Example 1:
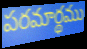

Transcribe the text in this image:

పరమార్థము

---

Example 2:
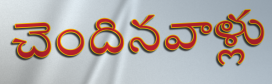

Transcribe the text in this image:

చెందినవాళ్లు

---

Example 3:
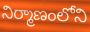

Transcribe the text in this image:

నిర్మాణంలోని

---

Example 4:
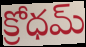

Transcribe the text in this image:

క్రోధమ్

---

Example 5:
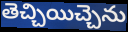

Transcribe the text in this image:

తెచ్చియిచ్చెను